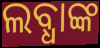
ଲବ୍ଧାଙ୍କ